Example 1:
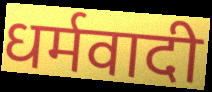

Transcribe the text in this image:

धर्मवादी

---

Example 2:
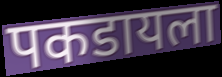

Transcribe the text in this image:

पकडायला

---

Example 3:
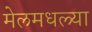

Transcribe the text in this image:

मेलमधल्या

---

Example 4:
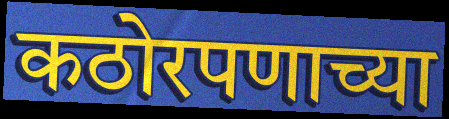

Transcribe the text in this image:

कठोरपणाच्या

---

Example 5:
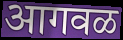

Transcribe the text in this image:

आगवळ